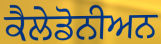
ਕੈਲੇਡੋਨੀਅਨ